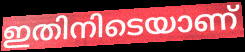
ഇതിനിടെയാണ്